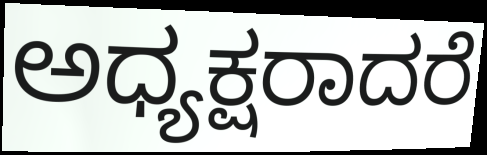
ಅಧ್ಯಕ್ಷರಾದರೆ